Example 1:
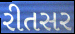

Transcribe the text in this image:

રીતસર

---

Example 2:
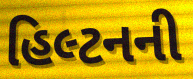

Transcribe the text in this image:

હિલ્ટનની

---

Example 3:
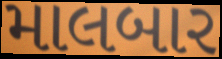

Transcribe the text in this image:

માલબાર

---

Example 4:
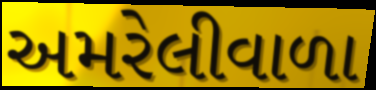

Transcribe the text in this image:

અમરેલીવાળા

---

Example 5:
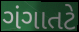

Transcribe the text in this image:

ગંગાતટે